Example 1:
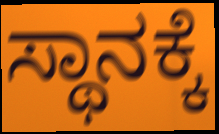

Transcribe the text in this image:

ಸ್ಥಾನಕ್ಕೆ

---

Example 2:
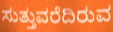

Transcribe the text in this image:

ಸುತ್ತುವರೆದಿರುವ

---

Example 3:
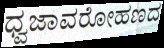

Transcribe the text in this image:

ಧ್ವಜಾವರೋಹಣದ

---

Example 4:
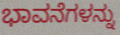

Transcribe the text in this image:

ಭಾವನೆಗಳನ್ನು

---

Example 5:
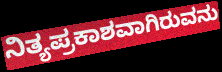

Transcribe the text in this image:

ನಿತ್ಯಪ್ರಕಾಶವಾಗಿರುವನು